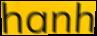
hanh